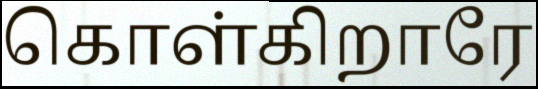
கொள்கிறாரே